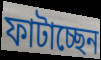
ফাটাচ্ছেন